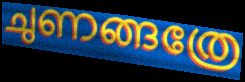
ചുണങ്ങത്രേ